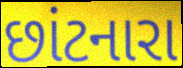
છાંટનારા